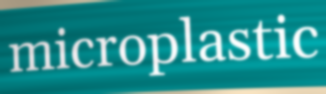
microplastic